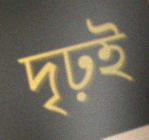
দৃঢ়ই